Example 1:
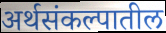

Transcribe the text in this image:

अर्थसंकल्पातील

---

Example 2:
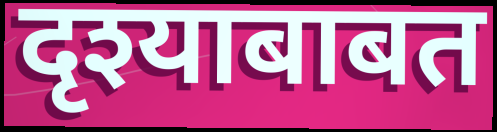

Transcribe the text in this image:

दृश्याबाबत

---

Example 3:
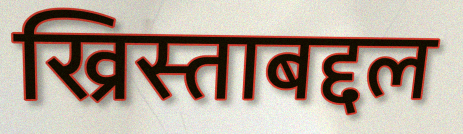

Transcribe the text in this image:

ख्रिस्ताबद्दल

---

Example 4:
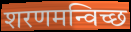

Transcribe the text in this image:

शरणमन्विच्छ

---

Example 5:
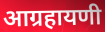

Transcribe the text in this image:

आग्रहायणी